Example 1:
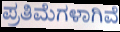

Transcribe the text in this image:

ಪ್ರತಿಮೆಗಳಾಗಿವೆ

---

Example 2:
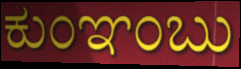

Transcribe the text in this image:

ಕುಂಞಂಬು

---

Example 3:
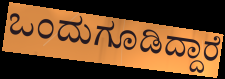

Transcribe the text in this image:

ಒಂದುಗೂಡಿದ್ದಾರೆ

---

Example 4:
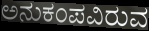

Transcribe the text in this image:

ಅನುಕಂಪವಿರುವ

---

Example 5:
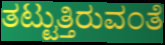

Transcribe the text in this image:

ತಟ್ಟುತ್ತಿರುವಂತೆ